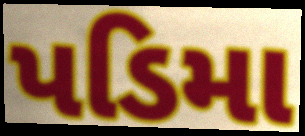
પડિમા